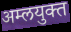
अम्लयुक्त